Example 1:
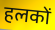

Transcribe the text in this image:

हलकों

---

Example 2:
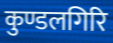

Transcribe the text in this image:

कुण्डलगिरि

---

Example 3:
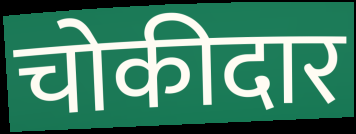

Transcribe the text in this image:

चोकीदार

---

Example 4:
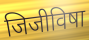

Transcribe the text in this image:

जिजीविषा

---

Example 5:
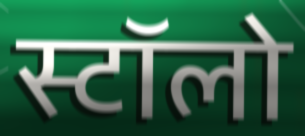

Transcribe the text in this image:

स्टॉलो